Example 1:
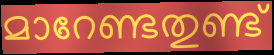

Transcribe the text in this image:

മാറേണ്ടതുണ്ട്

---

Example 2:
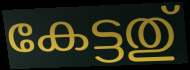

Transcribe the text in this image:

കേട്ടതു്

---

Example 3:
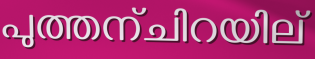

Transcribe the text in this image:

പുത്തന്ചിറയില്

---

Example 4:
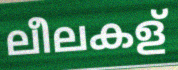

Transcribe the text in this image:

ലീലകള്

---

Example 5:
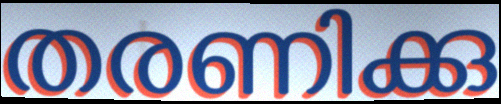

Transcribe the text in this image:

തരണിക്കു